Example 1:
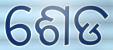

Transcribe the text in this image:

ଶେଡ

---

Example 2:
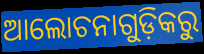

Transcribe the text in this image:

ଆଲୋଚନାଗୁଡ଼ିକରୁ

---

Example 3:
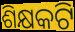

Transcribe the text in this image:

ଶିକ୍ଷକଟି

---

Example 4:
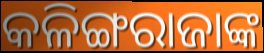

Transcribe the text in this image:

କଳିଙ୍ଗରାଜାଙ୍କ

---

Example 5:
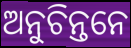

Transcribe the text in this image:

ଅନୁଚିନ୍ତନେ